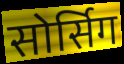
सोर्सिग